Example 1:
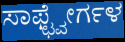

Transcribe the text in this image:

ಸಾಫ್ಟ್ವೇರ್ಗಳ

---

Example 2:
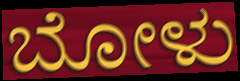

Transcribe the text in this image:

ಬೋಳು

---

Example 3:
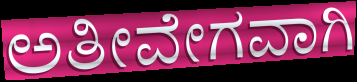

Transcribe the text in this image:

ಅತೀವೇಗವಾಗಿ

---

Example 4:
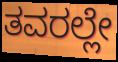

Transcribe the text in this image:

ತವರಲ್ಲೇ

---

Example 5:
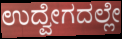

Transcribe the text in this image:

ಉದ್ವೇಗದಲ್ಲೇ